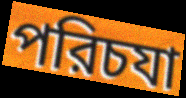
পরিচযা